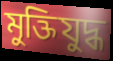
মুক্তিযুদ্ধ